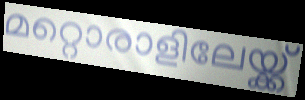
മറ്റൊരാളിലേയ്ക്ക്